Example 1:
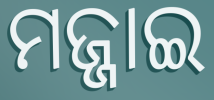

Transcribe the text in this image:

ମଜ୍ଜାଇ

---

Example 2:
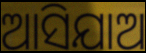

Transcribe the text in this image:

ଆସିଯାଅ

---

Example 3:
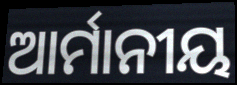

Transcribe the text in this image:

ଆର୍ମାନୀୟ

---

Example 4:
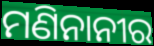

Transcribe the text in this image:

ମଣିନାନୀର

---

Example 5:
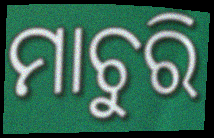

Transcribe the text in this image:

ମାଚୁରି